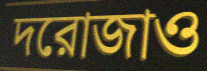
দরোজাও